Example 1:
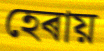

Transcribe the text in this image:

হেৰায়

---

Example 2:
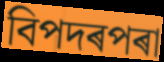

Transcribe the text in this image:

বিপদৰপৰা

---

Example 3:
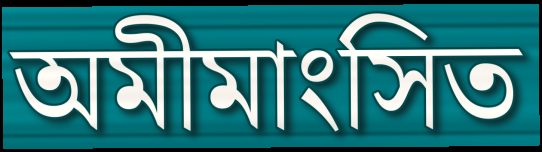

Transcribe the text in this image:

অমীমাংসিত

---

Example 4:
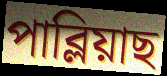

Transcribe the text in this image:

পাব্লিয়াছ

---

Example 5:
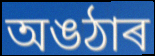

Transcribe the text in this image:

অঙঠাৰ